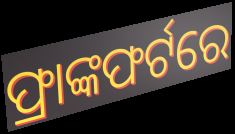
ଫ୍ରାଙ୍କଫର୍ଟରେ